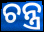
ଚନ୍ତ୍ର